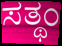
ಸತ್ಥಂ